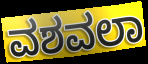
ವಶವಲಾ